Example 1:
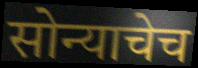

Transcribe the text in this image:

सोन्याचेच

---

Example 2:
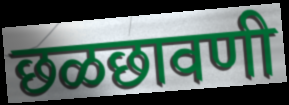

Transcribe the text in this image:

छळछावणी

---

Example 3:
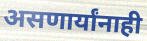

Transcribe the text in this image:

असणार्यांनाही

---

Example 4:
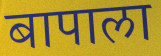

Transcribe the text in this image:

बापाला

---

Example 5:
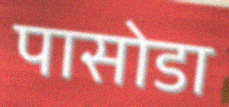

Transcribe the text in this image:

पासोडा